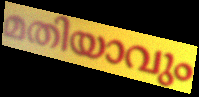
മതിയാവും